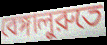
বেঙ্গালুরুতে